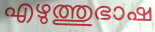
എഴുത്തുഭാഷ